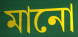
মানো